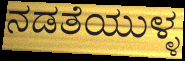
ನಡತೆಯುಳ್ಳ